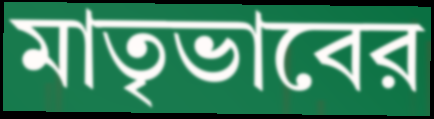
মাতৃভাবের